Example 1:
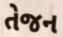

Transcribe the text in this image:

તેજન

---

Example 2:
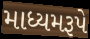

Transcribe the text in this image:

માધ્યમરૂપે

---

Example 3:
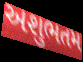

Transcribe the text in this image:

અશુભતમ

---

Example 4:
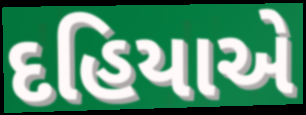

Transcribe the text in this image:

દહિયાએ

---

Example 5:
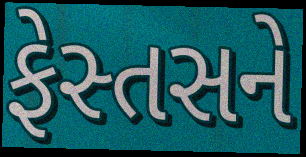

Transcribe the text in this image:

ફેસ્તસને